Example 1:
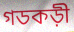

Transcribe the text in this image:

গডকড়ী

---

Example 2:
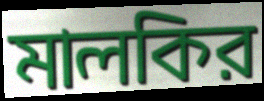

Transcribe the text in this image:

মালকির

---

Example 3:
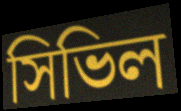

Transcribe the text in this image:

সিভিল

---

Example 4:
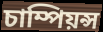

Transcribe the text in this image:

চাম্পিয়ন্স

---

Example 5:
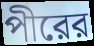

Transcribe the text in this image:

পীরের